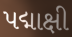
પદ્માક્ષી